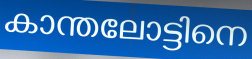
കാന്തലോട്ടിനെ